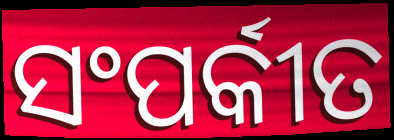
ସଂପର୍କୀତ